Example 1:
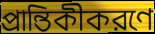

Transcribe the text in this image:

প্রান্তিকীকরণে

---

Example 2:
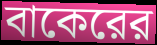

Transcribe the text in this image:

বাকেরের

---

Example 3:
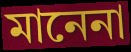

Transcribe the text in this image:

মানেনা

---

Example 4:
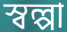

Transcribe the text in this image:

স্বল্পা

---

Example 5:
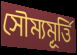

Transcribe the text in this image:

সৌম্যমূর্ত্তি